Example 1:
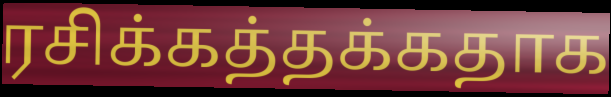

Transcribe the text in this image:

ரசிக்கத்தக்கதாக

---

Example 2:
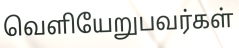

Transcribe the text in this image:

வெளியேறுபவர்கள்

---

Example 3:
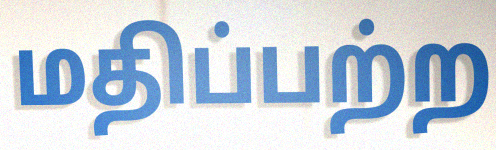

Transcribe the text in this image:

மதிப்பற்ற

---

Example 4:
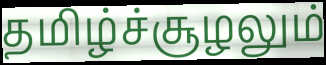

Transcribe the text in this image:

தமிழ்ச்சூழலும்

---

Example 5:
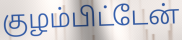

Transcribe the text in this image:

குழம்பிட்டேன்